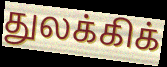
துலக்கிக்